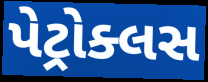
પેટ્રોક્લસ